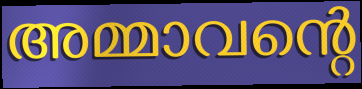
അമ്മാവന്റെ